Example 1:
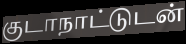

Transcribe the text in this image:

குடாநாட்டுடன்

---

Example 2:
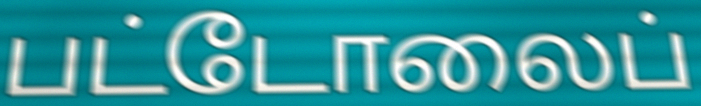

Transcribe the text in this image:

பட்டோலைப்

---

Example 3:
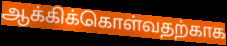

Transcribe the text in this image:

ஆக்கிக்கொள்வதற்காக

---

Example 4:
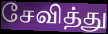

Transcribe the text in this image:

சேவித்து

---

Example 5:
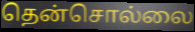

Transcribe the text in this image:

தென்சொல்லை